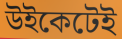
উইকেটেই